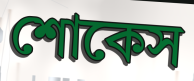
শোকেস